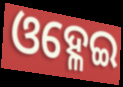
ଓହ୍ଳେଇ